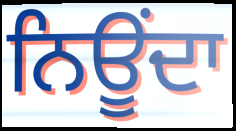
ਨਿਊਂਦਾ